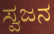
ಸ್ವಜನ